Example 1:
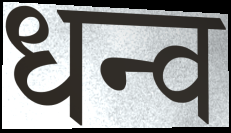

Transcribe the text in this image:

धन्व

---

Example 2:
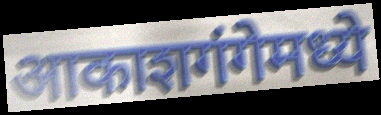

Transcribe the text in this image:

आकाशगंगेमध्ये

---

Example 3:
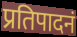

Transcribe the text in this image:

प्रतिपादनं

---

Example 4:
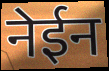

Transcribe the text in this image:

नेईन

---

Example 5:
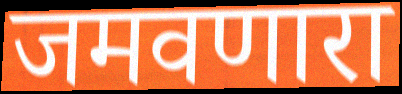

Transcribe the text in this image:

जमवणारा